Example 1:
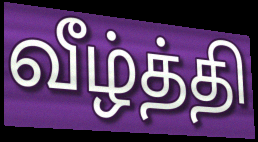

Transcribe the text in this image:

வீழ்த்தி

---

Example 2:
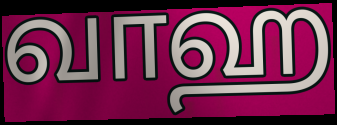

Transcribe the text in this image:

வாஹ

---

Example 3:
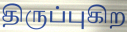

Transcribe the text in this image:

திருப்புகிற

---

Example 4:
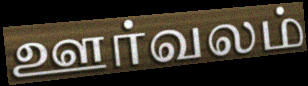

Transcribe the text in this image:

ஊர்வலம்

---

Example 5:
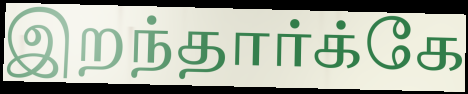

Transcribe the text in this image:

இறந்தார்க்கே